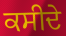
ਕਸੀਦੇ